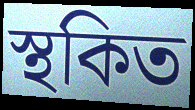
স্থকিত